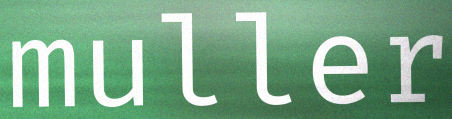
muller